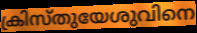
ക്രിസ്തുയേശുവിനെ